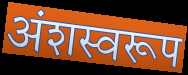
अंशस्वरूप